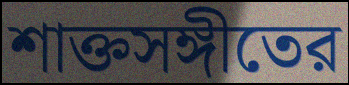
শাক্তসঙ্গীতের